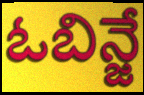
ఓబిన్జే